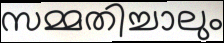
സമ്മതിച്ചാലും